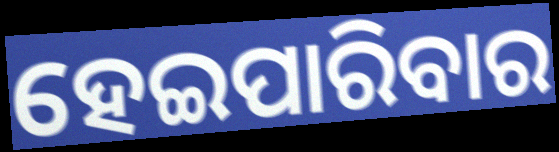
ହେଇପାରିବାର